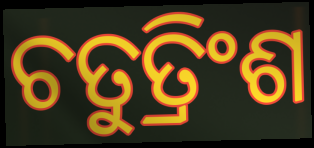
ଚତୁତ୍ରିଂଶ